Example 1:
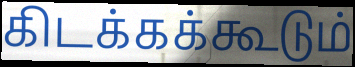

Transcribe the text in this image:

கிடக்கக்கூடும்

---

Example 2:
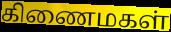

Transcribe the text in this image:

கிணைமகள்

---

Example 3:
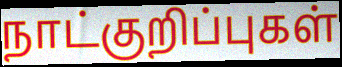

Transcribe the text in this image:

நாட்குறிப்புகள்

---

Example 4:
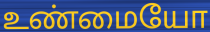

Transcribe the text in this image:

உண்மையோ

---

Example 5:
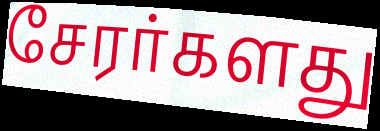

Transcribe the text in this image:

சேரர்களது